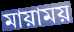
মায়াময়